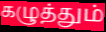
கழுத்தும்